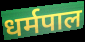
धर्मपाल